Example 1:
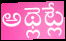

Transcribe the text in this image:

అథ్లెట్లే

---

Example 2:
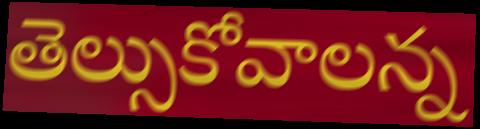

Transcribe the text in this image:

తెల్సుకోవాలన్న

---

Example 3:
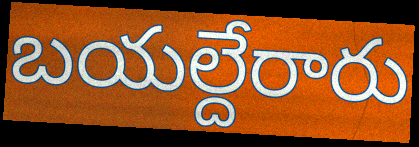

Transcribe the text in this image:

బయల్దేరారు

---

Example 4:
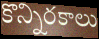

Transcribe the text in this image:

కొన్నిరకాలు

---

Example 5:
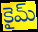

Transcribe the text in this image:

కైమ్